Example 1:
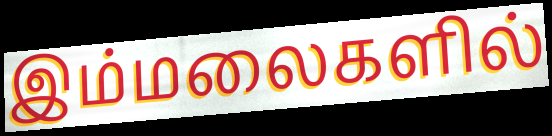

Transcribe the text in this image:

இம்மலைகளில்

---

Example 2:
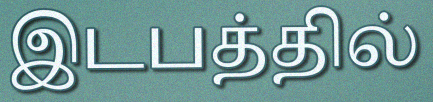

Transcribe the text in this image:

இடபத்தில்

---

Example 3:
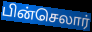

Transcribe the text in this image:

பின்செலார்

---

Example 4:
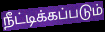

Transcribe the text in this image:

நீட்டிக்கப்படும்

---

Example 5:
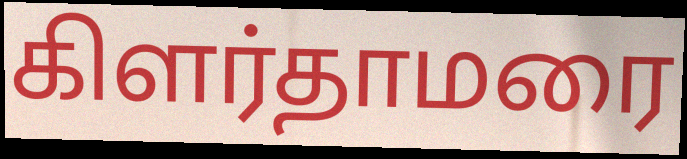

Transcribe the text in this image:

கிளர்தாமரை